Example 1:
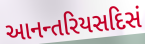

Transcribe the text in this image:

આનન્તરિયસદિસં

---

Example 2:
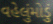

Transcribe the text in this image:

વહેલુંમોડું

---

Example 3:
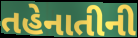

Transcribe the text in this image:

તહેનાતીની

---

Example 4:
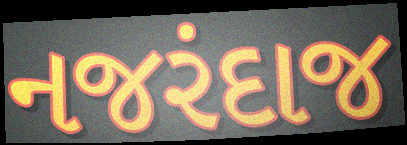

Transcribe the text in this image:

નજરંદાજ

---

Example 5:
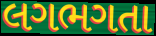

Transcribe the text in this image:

લગભગતા